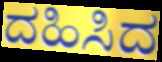
ದಹಿಸಿದ